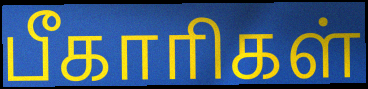
பீகாரிகள்